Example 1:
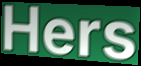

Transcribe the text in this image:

Hers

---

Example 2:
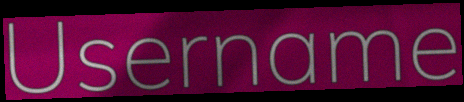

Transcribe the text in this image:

Username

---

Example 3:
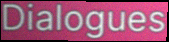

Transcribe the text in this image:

Dialogues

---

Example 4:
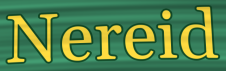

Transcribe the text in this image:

Nereid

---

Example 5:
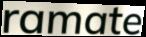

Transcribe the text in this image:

ramate